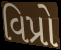
વિપ્રો